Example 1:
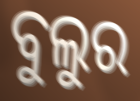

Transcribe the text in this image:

ବୁଲୁର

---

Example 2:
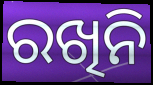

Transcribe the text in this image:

ରଖିନି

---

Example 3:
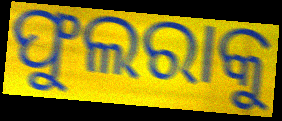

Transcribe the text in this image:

ଫୁଲରାକୁ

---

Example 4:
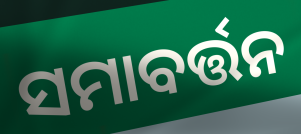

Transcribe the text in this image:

ସମାବର୍ତ୍ତନ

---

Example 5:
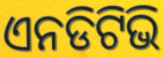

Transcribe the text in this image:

ଏନଡିଟିଭି